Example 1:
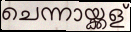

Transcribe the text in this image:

ചെന്നായ്ക്കള്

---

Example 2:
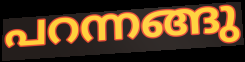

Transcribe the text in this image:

പറന്നങ്ങു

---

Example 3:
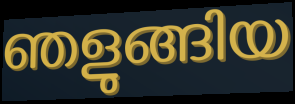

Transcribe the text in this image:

ഞളുങ്ങിയ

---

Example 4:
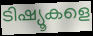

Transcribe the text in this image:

ടിഷ്യൂകളെ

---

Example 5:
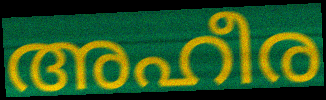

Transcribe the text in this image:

അഹീര